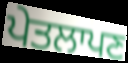
ਪੇਤਲਾਪਣ